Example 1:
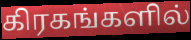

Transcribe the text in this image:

கிரகங்களில்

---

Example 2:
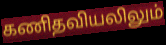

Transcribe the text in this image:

கணிதவியலிலும்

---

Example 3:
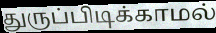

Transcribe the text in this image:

துருப்பிடிக்காமல்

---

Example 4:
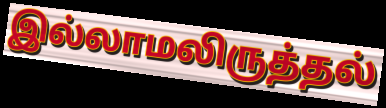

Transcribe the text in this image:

இல்லாமலிருத்தல்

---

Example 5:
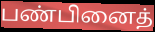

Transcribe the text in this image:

பண்பினைத்